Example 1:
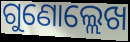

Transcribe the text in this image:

ଗୁଣୋଲ୍ଲେଖ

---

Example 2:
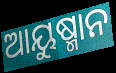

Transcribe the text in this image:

ଆୟୁଷ୍ମାନ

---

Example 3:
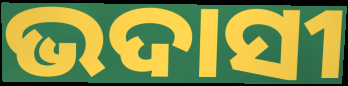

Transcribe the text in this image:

ଭଦାସୀ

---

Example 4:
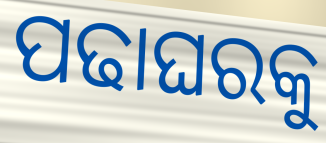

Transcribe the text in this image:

ପଢାଘରକୁ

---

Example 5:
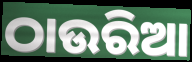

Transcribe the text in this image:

ଠାଉରିଆ